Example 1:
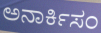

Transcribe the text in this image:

ಅನಾರ್ಕಿಸಂ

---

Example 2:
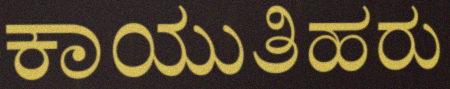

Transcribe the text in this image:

ಕಾಯುತಿಹರು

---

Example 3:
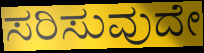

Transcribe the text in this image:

ಸರಿಸುವುದೇ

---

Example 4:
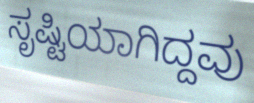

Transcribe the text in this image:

ಸೃಷ್ಟಿಯಾಗಿದ್ದವು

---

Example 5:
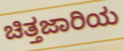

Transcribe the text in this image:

ಚಿತ್ತಜಾರಿಯ